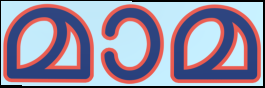
മാമ